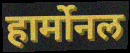
हार्मोनल